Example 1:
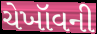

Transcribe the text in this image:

ચેખૉવની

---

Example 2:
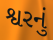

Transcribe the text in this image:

શ્વરનું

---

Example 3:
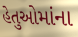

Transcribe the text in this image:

હેતુઓમાંના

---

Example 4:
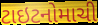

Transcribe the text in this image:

ટાઇટનોમાચી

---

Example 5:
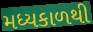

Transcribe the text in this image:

મધ્યકાળથી